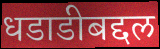
धडाडीबद्दल